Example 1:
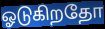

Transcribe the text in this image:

ஓடுகிறதோ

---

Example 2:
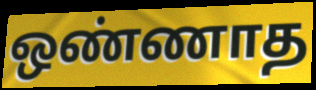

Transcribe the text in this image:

ஒண்ணாத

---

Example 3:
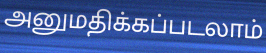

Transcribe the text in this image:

அனுமதிக்கப்படலாம்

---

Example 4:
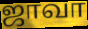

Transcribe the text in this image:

ஜாவா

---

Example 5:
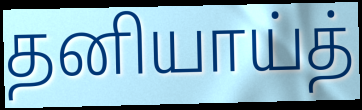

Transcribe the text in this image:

தனியாய்த்